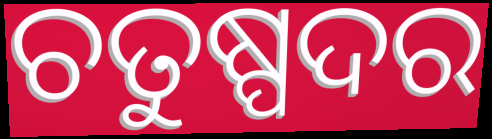
ଚତୁଷ୍ପଦର